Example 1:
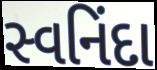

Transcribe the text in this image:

સ્વનિંદા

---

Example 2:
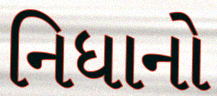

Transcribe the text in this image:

નિધાનો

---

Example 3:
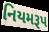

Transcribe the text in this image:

નિયમરૂપ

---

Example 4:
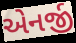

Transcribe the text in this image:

એનર્જી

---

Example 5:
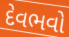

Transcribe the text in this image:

દેવભવો